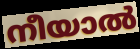
നീയാൽ